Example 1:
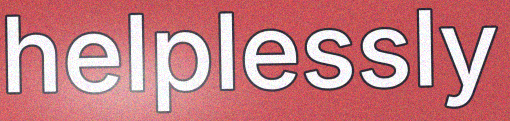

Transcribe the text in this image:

helplessly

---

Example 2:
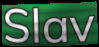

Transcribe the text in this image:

Slav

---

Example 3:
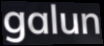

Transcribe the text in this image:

galun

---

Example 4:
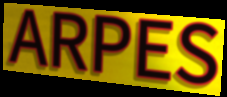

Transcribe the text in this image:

ARPES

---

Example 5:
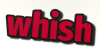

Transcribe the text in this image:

whish